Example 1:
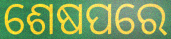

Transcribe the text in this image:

ଶେଷପରେ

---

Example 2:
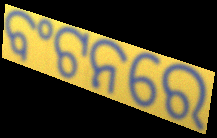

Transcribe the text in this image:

ବଂଟନରେ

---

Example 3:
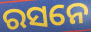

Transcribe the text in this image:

ରସନେ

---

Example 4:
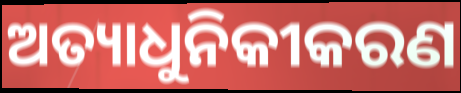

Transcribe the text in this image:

ଅତ୍ୟାଧୁନିକୀକରଣ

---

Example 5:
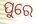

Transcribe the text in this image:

ପୁରେ